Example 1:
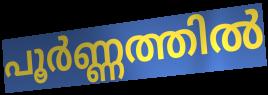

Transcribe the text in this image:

പൂർണ്ണത്തിൽ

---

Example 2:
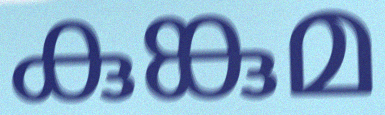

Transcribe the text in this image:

കുങ്കുമ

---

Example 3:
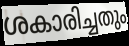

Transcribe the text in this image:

ശകാരിച്ചതും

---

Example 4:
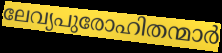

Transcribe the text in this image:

ലേവ്യപുരോഹിതന്മാർ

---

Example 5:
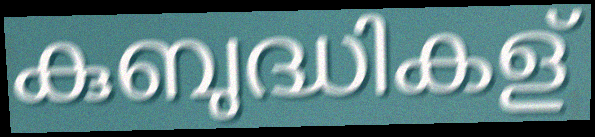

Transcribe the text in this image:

കുബുദ്ധികള്